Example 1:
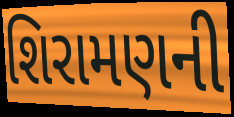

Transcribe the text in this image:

શિરામણની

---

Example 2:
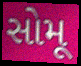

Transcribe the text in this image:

સોમૂ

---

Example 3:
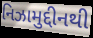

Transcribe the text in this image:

નિઝામુદ્દીનથી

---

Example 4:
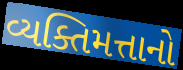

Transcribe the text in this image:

વ્યક્તિમત્તાનો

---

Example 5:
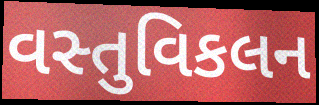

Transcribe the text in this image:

વસ્તુવિકલન